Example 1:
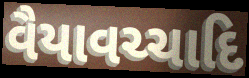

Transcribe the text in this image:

વૈયાવચ્ચાદિ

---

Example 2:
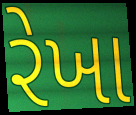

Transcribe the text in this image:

રેખા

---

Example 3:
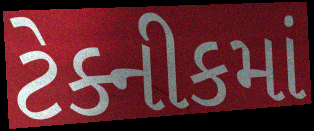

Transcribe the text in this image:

ટેક્નીકમાં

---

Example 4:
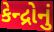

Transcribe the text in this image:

કેન્દ્રોનું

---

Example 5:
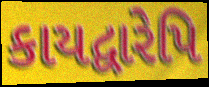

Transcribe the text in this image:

કાયદ્વારેપિ